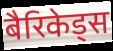
बैरिकेड्स